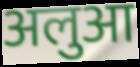
अलुआ